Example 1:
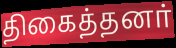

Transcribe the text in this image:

திகைத்தனர்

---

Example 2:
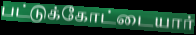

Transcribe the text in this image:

பட்டுக்கோட்டையார்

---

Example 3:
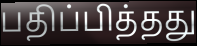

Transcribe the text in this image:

பதிப்பித்தது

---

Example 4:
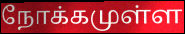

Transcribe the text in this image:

நோக்கமுள்ள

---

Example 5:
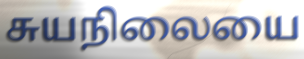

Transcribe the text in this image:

சுயநிலையை